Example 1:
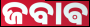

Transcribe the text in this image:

ଜବାଵ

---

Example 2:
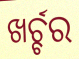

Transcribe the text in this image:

ଖର୍ଚ୍ଚର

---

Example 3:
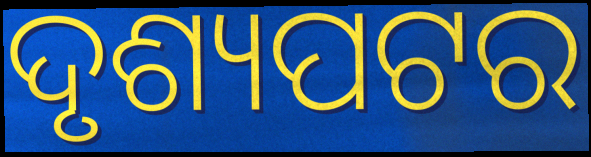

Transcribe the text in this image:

ଦୃଶ୍ୟପଟର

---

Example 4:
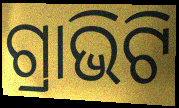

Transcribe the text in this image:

ଗ୍ରାଭିଟି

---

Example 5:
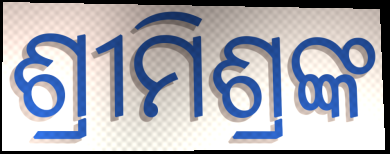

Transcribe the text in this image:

ଶ୍ରୀମିଶ୍ରଙ୍କ